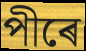
পীৰে